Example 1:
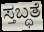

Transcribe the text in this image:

ಸ್ತಬ್ಧತೆ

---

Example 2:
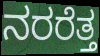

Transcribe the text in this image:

ನರರೆತ್ತ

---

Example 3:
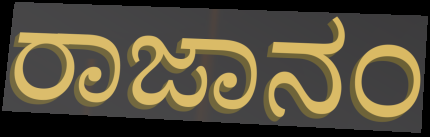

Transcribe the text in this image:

ರಾಜಾನಂ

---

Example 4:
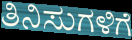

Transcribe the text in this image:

ತಿನಿಸುಗಳಿಗೆ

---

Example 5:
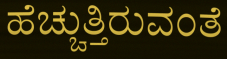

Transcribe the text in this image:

ಹೆಚ್ಚುತ್ತಿರುವಂತೆ